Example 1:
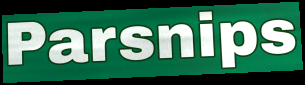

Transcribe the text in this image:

Parsnips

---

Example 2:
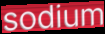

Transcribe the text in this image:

sodium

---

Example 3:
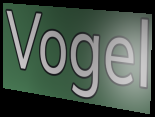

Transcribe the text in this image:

Vogel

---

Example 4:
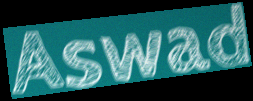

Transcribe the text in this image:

Aswad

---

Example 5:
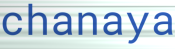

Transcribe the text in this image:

chanaya